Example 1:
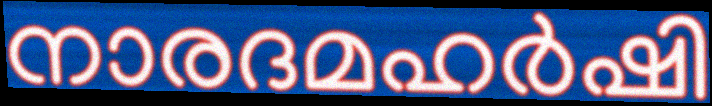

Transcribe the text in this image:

നാരദമഹർഷി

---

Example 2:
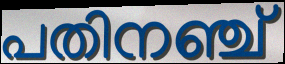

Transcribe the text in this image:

പതിനഞ്ച്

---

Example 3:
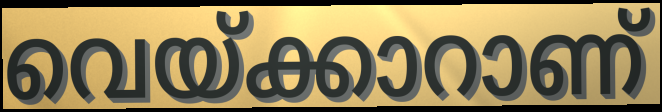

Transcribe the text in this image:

വെയ്ക്കാറാണ്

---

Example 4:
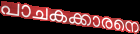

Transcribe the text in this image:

പാചകക്കാരനെ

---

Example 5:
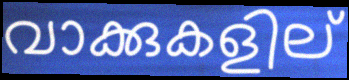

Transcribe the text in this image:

വാക്കുകളില്